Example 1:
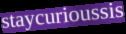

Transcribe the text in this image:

staycurioussis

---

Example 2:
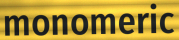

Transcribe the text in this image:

monomeric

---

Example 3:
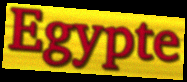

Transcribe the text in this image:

Egypte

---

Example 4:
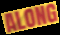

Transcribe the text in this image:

ALONG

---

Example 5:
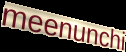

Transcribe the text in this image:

meenunchi